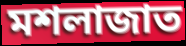
মশলাজাত